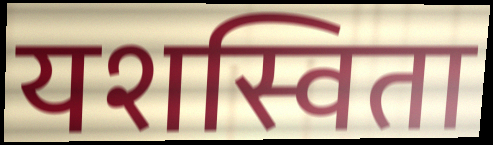
यशस्विता